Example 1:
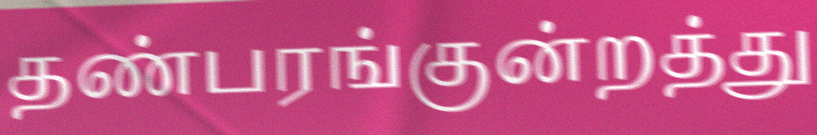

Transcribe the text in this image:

தண்பரங்குன்றத்து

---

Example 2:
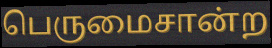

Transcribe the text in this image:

பெருமைசான்ற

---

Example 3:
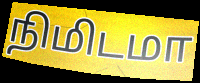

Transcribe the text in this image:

நிமிடமா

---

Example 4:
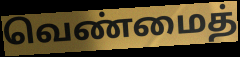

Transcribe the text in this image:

வெண்மைத்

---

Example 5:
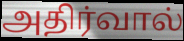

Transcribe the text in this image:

அதிர்வால்